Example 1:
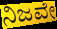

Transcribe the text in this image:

ನಿಜವೇ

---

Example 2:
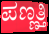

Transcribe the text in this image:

ಪಣ್ಣತ್ತಿ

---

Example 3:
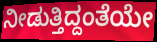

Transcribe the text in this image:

ನೀಡುತ್ತಿದ್ದಂತೆಯೇ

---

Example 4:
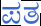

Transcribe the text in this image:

ಪತ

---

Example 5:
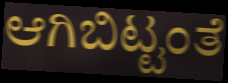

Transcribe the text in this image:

ಆಗಿಬಿಟ್ಟಂತೆ